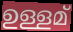
ഉള്ളമ്